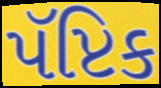
પૅપ્ટિક